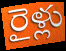
రైళ్లు